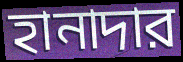
হানাদার